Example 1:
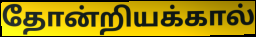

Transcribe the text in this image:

தோன்றியக்கால்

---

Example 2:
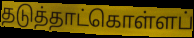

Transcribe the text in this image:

தடுத்தாட்கொள்ளப்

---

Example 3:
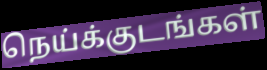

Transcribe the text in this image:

நெய்க்குடங்கள்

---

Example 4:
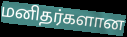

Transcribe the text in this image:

மனிதர்களான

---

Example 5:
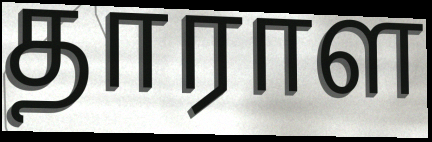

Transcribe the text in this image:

தாராள